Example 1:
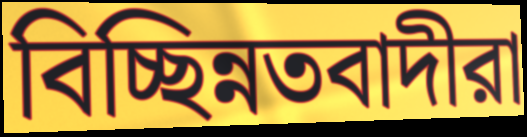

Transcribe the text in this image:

বিচ্ছিন্নতবাদীরা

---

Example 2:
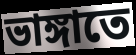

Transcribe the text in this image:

ভাঙ্গাতে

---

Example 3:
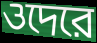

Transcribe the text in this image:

ওদেরে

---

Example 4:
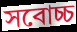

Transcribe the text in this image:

সবোচ্চ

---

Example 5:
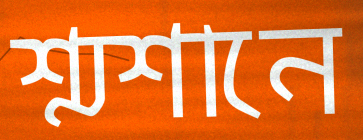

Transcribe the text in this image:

শ্মশানে